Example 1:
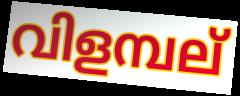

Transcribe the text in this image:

വിളമ്പല്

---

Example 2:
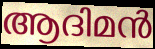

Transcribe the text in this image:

ആദിമൻ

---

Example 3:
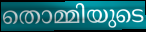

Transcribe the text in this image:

തൊമ്മിയുടെ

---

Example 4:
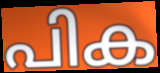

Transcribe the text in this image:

പിക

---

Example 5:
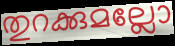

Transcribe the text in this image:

തുറക്കുമല്ലോ